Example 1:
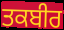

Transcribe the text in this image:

ਤਕਬੀਰ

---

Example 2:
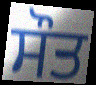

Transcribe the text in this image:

ਸੌਤ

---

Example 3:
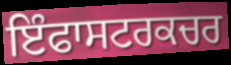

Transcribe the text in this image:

ਇੰਫਾਸਟਰਕਚਰ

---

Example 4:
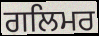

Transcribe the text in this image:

ਗਲਿਮਰ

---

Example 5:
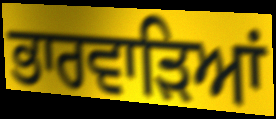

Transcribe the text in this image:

ਭਾਰਵਾੜਿਆਂ